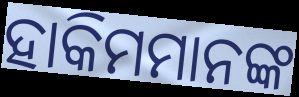
ହାକିମମାନଙ୍କ